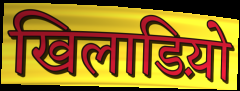
खिलाडिय़ो